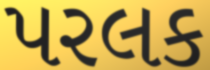
પરલક